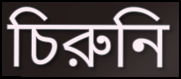
চিরুনি